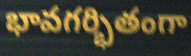
భావగర్భితంగా